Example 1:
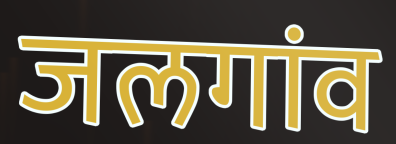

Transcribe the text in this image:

जलगांव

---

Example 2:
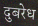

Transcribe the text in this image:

दुबरेध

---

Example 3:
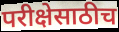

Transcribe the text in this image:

परीक्षेसाठीच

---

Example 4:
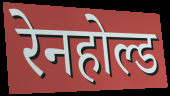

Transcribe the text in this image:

रेनहोल्ड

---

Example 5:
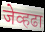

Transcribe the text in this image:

जेव्हढा